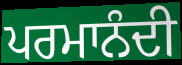
ਪਰਮਾਨੰਦੀ